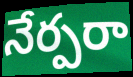
నేర్పరా